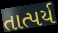
તાત્પર્ય